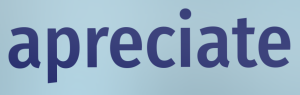
apreciate